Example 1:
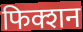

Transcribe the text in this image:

फिक्‍शन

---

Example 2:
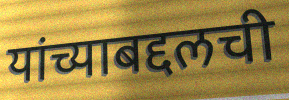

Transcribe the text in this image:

यांच्याबद्दलची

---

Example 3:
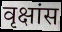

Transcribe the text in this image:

वृक्षांस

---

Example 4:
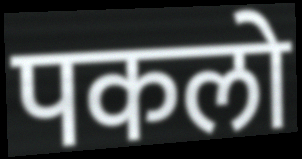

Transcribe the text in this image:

पकलो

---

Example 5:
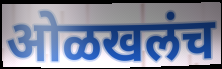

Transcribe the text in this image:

ओळखलंच